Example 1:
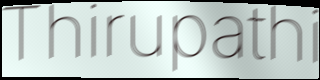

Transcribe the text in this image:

Thirupathi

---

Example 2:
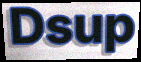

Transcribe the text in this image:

Dsup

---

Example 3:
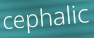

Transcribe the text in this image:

cephalic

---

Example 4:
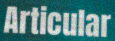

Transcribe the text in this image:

Articular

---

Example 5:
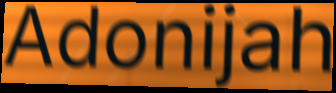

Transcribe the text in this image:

Adonijah